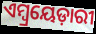
ଏମ୍ୱ୍ରୟେଡ଼ାରୀ